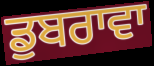
ਡੁਬਰਾਵਾ